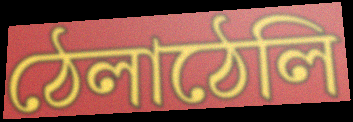
ঠেলাঠেলি